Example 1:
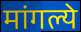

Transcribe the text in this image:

मांगल्ये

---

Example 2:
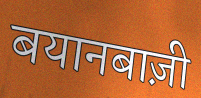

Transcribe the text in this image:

बयानबाज़ी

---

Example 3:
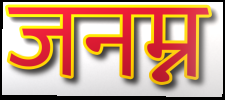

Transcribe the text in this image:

जनम्न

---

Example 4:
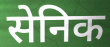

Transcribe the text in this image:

सेनिक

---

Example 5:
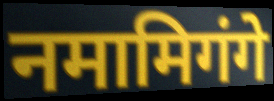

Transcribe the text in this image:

नमामिगंगे